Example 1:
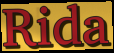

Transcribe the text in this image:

Rida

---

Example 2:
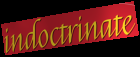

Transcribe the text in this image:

indoctrinate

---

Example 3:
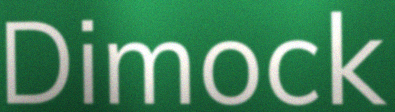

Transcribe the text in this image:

Dimock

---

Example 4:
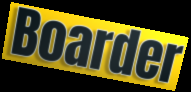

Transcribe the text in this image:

Boarder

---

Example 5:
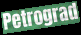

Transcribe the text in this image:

Petrograd